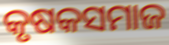
କୃଷକସମାଜ